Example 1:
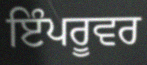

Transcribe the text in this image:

ਇੰਪਰੂਵਰ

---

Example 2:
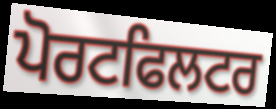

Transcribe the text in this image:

ਪੋਰਟਫਿਲਟਰ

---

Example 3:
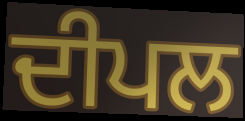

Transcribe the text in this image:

ਦੀਪਲ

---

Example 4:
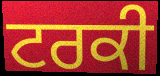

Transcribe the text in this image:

ਟਰਕੀ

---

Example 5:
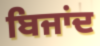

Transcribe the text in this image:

ਬਿਜਾਂਦ